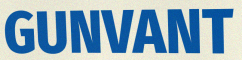
GUNVANT